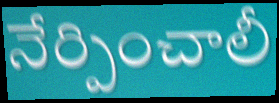
నేర్పించాలీ